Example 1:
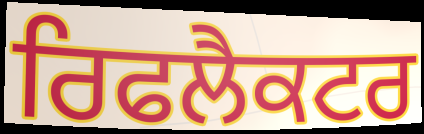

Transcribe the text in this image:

ਰਿਫਲੈਕਟਰ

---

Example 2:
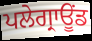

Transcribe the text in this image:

ਪਲੇਗ੍ਰਾਊਂਡ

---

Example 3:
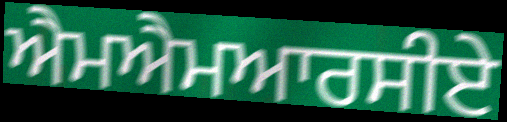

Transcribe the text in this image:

ਐਮਐਮਆਰਸੀਏ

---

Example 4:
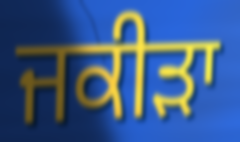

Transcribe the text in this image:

ਜਕੀੜਾ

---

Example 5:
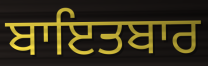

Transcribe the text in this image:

ਬਾਇਤਬਾਰ